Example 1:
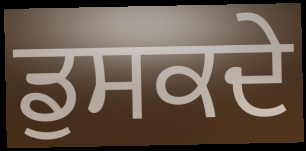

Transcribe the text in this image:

ਡੁਸਕਦੇ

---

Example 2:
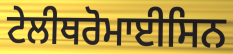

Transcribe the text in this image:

ਟੇਲੀਥਰੋਮਾਈਸਿਨ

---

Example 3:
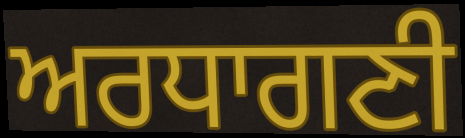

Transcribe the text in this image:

ਅਰਧਾਗਣੀ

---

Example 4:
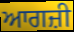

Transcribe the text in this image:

ਆਗਜ਼ੀ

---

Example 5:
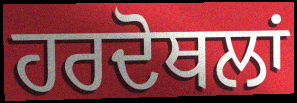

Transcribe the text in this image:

ਹਰਦੋਥਲਾਂ